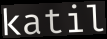
katil